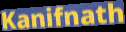
Kanifnath